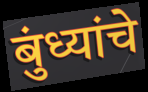
बुंध्यांचे